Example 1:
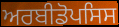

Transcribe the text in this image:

ਅਰਬੀਡੋਪਸਿਸ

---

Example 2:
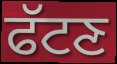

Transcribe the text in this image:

ਫੱਟਣ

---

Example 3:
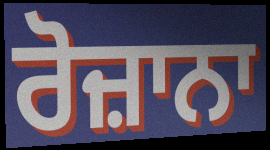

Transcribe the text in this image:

ਰੋਜ਼ਾਨਾ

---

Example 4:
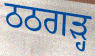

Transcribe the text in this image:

ਠਠਗੜ੍ਹ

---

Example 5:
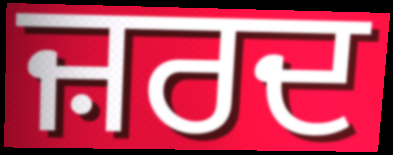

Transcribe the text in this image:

ਜ਼ਰਦ